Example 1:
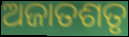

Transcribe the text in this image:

ଅଜାତଶତୃ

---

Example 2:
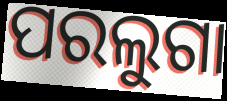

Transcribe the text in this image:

ପରଲୁଗା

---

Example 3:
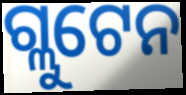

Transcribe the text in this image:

ଗ୍ଲୁଟେନ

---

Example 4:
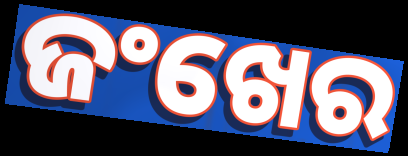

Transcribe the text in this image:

ଜଂଖେର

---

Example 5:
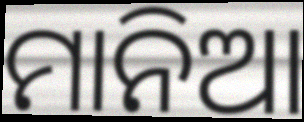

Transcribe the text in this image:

ମାନିଆ